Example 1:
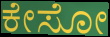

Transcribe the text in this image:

ಕೇಸೋ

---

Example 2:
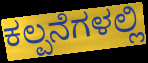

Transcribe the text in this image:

ಕಲ್ಪನೆಗಳಲ್ಲಿ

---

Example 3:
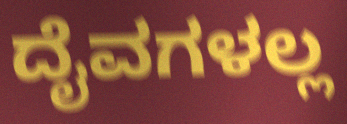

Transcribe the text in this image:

ದೈವಗಳಲ್ಲ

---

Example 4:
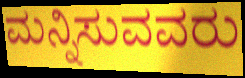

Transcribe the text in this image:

ಮನ್ನಿಸುವವರು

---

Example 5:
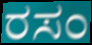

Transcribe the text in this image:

ರಸಂ